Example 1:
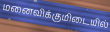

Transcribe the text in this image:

மனைவிக்குமிடையில்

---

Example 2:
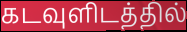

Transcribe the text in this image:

கடவுளிடத்தில்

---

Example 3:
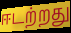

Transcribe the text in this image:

ஈடற்றது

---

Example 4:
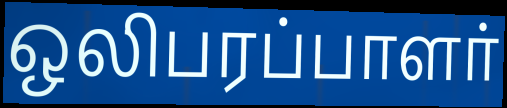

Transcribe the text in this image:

ஒலிபரப்பாளர்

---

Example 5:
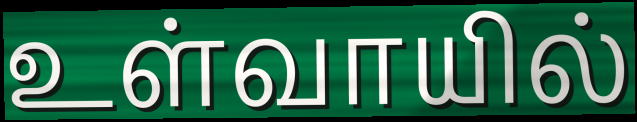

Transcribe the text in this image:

உள்வாயில்